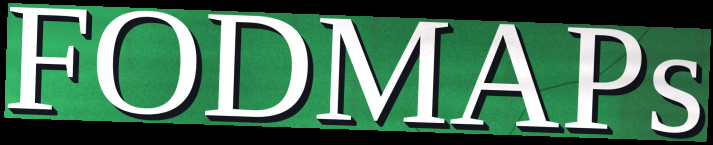
FODMAPs